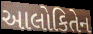
આલોકિતેન